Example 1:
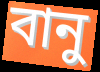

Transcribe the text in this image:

বানু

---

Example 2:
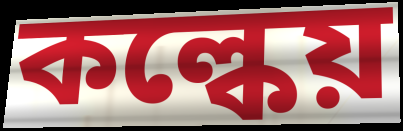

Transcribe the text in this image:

কল্কেয়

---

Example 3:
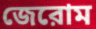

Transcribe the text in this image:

জেরোম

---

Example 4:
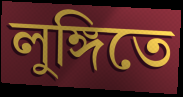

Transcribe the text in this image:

লুঙ্গিতে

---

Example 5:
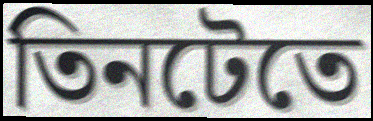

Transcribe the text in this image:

তিনটেতে